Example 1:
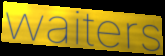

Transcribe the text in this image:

waiters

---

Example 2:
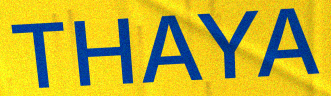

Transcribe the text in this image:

THAYA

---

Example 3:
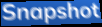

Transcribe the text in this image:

Snapshot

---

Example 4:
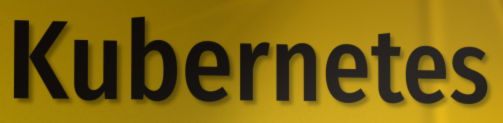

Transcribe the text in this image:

Kubernetes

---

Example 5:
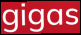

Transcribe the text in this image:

gigas